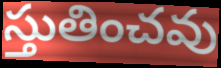
స్తుతించవు